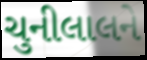
ચુનીલાલને